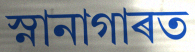
স্নানাগাৰত